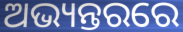
ଅଭ୍ୟନ୍ତରରେ